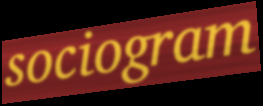
sociogram